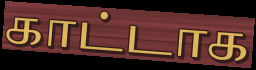
காட்டாக